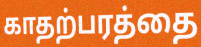
காதற்பரத்தை